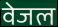
वेजल